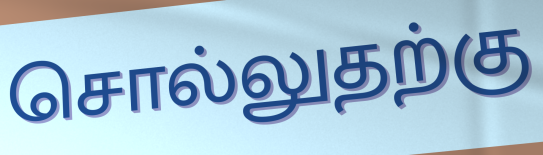
சொல்லுதற்கு